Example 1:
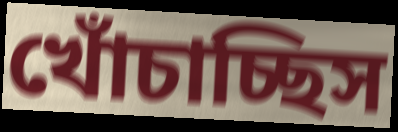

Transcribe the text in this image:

খোঁচাচ্ছিস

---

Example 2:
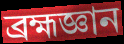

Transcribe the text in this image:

ব্রহ্মজ্ঞান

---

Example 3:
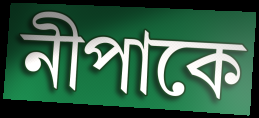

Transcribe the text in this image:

নীপাকে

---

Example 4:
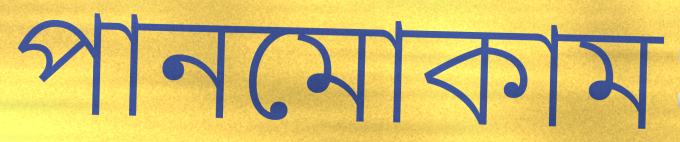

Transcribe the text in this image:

পানমোকাম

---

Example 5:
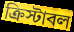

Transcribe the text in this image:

ক্রিস্টাবল